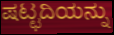
ಷಟ್ಟದಿಯನ್ನು